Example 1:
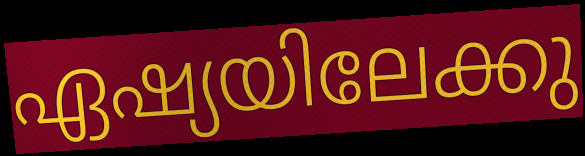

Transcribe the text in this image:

ഏഷ്യയിലേക്കു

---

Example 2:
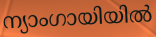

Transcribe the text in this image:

ന്യാംഗായിയിൽ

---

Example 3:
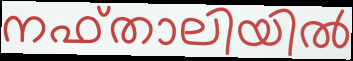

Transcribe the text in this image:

നഫ്താലിയിൽ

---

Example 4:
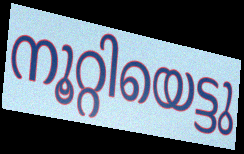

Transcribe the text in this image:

നൂറ്റിയെട്ടു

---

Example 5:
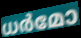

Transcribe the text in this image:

ധർമോ